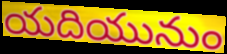
యదియునుం